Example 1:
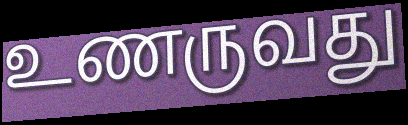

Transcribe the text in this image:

உணருவது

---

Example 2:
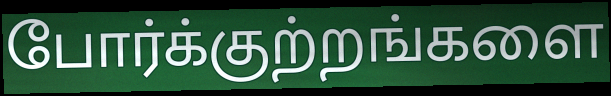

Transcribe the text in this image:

போர்க்குற்றங்களை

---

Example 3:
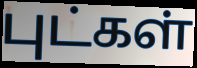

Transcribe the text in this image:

புட்கள்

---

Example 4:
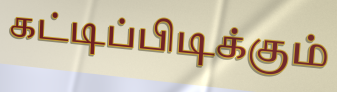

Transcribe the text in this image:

கட்டிப்பிடிக்கும்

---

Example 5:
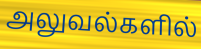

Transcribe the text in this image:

அலுவல்களில்